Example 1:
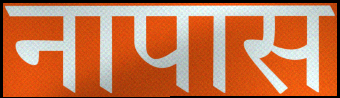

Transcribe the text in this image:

नापास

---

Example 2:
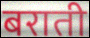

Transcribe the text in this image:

बराती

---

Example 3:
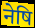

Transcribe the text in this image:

नेषि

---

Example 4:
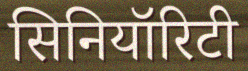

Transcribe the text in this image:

सिनियॉरिटी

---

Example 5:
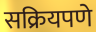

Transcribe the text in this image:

सक्रियपणे